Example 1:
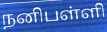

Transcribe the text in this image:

நனிபள்ளி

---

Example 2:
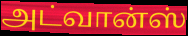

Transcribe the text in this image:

அட்வான்ஸ்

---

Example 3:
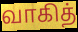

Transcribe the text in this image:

வாகித்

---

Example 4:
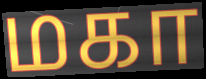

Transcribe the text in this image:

மகா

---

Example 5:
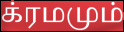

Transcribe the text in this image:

க்ரமமும்